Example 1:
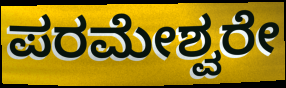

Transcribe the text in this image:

ಪರಮೇಶ್ವರೇ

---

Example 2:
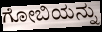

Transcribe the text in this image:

ಗೋಬಿಯನ್ನು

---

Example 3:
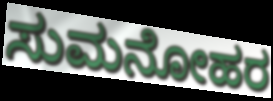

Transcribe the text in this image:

ಸುಮನೋಹರ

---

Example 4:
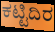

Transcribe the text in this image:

ಕಟ್ಟಿದಿರ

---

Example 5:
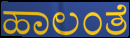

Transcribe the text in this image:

ಹಾಲಂತೆ